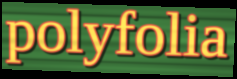
polyfolia